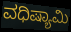
ವಧಿಷ್ಯಾಮಿ